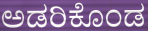
ಅಡರಿಕೊಂಡ